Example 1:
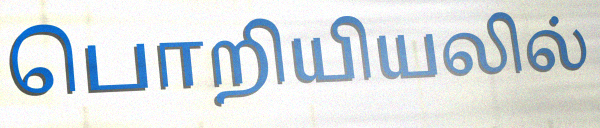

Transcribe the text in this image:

பொறியியலில்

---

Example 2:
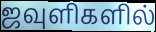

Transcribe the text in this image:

ஜவுளிகளில்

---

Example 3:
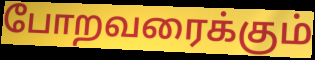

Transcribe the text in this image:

போறவரைக்கும்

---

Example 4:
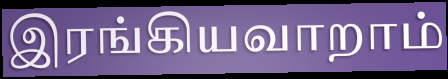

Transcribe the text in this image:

இரங்கியவாறாம்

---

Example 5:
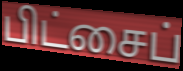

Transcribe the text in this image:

பிட்சைப்